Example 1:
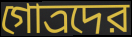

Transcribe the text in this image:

গোত্রদের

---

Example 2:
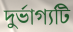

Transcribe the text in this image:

দুর্ভাগ্যটি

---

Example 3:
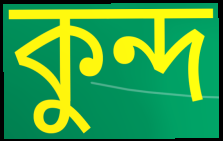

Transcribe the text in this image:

কুন্দ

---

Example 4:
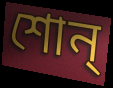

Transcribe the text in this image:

শোন্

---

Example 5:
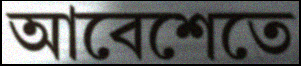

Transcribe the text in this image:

আবেশেতে